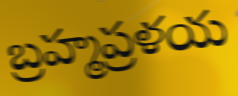
బ్రహ్మప్రళయ